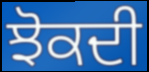
ਝੋਕਦੀ